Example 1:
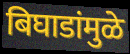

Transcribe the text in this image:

बिघाडांमुळे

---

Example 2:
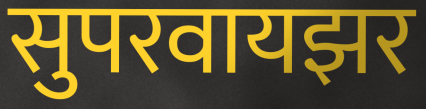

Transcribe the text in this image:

सुपरवायझर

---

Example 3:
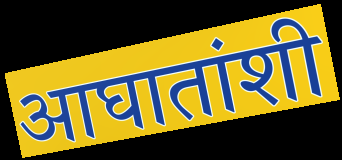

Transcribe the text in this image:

आघातांशी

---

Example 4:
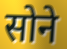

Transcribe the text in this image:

सोने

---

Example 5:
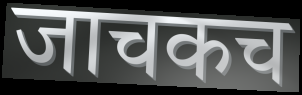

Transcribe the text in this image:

जाचकच